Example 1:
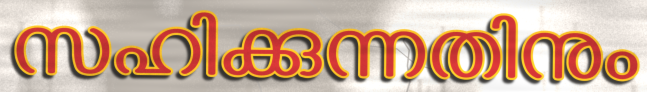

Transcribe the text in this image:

സഹിക്കുന്നതിനും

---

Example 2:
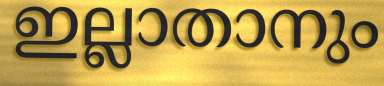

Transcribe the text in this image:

ഇല്ലാതാനും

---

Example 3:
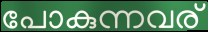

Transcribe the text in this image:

പോകുന്നവര്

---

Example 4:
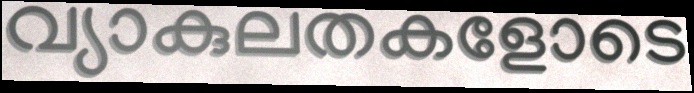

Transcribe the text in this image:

വ്യാകുലതകളോടെ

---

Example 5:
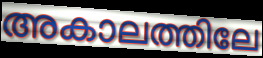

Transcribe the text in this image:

അകാലത്തിലേ